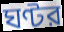
ঘণ্টর